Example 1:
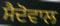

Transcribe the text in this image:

ਸੈਦੋਵਾਲ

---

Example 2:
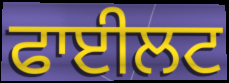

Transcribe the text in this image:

ਫਾਈਲਟ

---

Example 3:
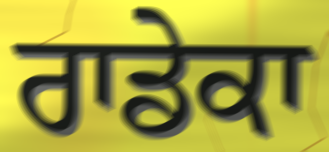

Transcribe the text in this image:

ਰਾਡੇਕਾ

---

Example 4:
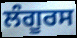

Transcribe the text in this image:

ਲੰਗੂਰਸ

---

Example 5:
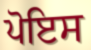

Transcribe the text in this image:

ਪੋਇਸ